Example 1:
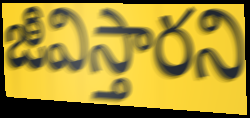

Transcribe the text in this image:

జీవిస్తారని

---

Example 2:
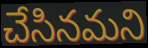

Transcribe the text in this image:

చేసినమని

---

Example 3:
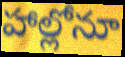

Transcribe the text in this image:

హాల్లోనూ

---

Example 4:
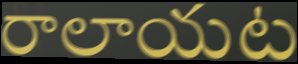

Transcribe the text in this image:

రాలాయట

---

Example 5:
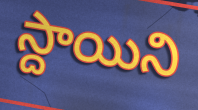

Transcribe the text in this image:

స్దాయిని